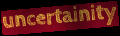
uncertainity